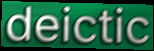
deictic